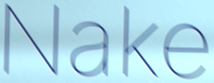
Nake